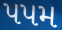
પપમ